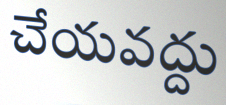
చేయవద్దు